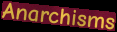
Anarchisms